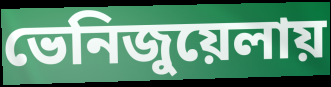
ভেনিজুয়েলায়